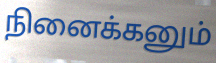
நினைக்கனும்